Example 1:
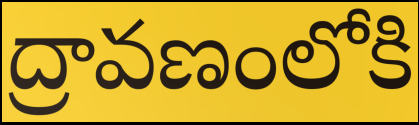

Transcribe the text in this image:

ద్రావణంలోకి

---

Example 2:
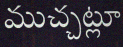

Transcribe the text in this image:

ముచ్చట్లూ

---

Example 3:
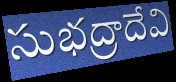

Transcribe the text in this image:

సుభద్రాదేవి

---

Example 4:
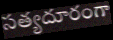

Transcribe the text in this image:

సత్యదూరంగా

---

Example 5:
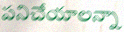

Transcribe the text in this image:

పనిచేయాలన్నా